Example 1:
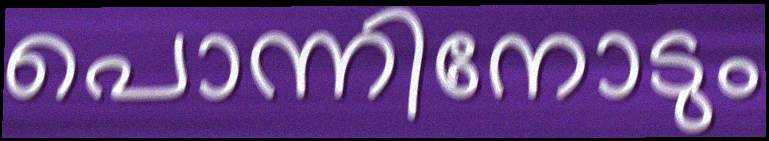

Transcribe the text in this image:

പൊന്നിനോടും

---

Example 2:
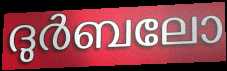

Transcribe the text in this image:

ദുർബലോ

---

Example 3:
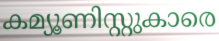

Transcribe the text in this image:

കമ്യൂണിസ്റ്റുകാരെ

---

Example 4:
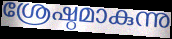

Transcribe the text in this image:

ശ്രേഷ്ഠമാകുന്നു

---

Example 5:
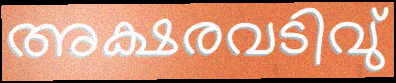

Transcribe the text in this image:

അക്ഷരവടിവു്